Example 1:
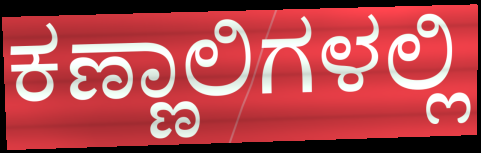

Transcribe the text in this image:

ಕಣ್ಣಾಲಿಗಳಲ್ಲಿ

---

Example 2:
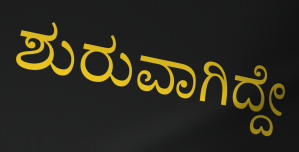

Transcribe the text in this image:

ಶುರುವಾಗಿದ್ದೇ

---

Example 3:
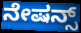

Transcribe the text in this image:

ನೇಷನ್ಸ್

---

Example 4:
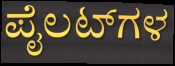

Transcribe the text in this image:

ಪೈಲಟ್‌ಗಳ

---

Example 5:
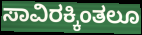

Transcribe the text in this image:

ಸಾವಿರಕ್ಕಿಂತಲೂ